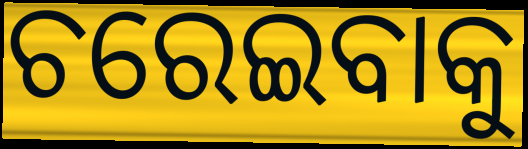
ଚରେଇବାକୁ